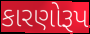
કારણોરૂપ